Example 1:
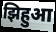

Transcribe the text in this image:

झिहुआ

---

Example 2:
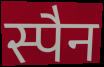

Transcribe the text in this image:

स्पैन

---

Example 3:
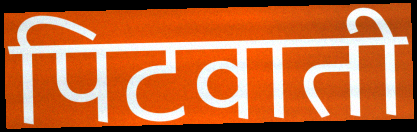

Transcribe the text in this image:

पिटवाती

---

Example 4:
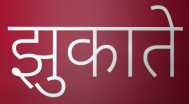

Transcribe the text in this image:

झुकाते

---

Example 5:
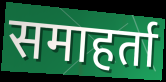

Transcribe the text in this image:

समाहर्ता